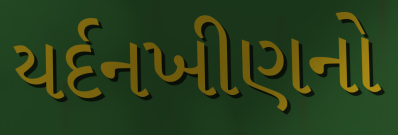
યર્દનખીણનો